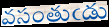
వసంతుఁడు